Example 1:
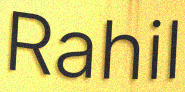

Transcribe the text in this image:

Rahil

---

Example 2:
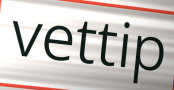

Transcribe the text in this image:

vettip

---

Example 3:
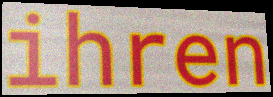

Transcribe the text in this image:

ihren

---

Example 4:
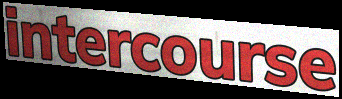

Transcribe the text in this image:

intercourse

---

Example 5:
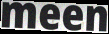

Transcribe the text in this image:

meen